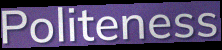
Politeness